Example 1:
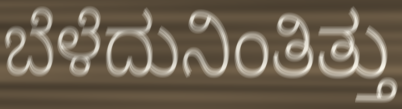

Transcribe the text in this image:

ಬೆಳೆದುನಿಂತಿತ್ತು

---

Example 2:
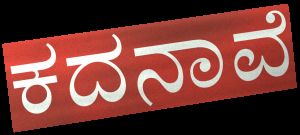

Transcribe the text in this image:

ಕದನಾವೆ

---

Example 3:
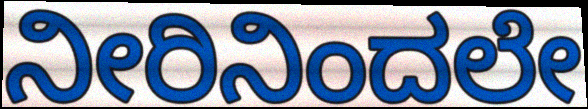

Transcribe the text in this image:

ನೀರಿನಿಂದಲೇ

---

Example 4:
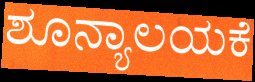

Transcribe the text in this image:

ಶೂನ್ಯಾಲಯಕೆ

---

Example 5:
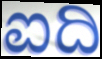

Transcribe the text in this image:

ಐದಿ